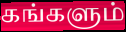
கங்களும்